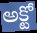
అక్టో